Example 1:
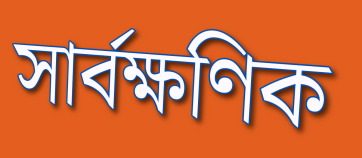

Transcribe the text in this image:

সার্বক্ষণিক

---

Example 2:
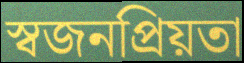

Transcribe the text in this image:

স্বজনপ্রিয়তা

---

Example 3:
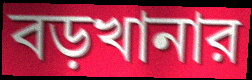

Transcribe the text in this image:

বড়খানার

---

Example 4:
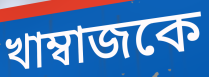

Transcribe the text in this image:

খাম্বাজকে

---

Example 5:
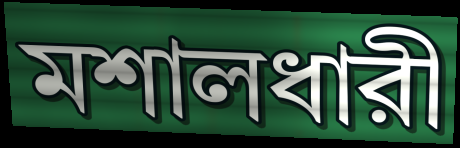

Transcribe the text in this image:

মশালধারী